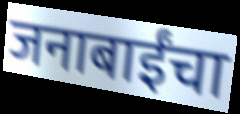
जनाबाईंचा